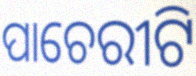
ପାଚେରୀଟି